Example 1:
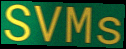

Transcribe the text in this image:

SVMs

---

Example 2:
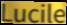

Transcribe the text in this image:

Lucile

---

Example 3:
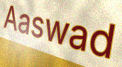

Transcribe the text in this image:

Aaswad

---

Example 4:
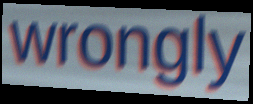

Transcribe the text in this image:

wrongly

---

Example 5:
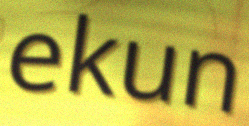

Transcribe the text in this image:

ekun